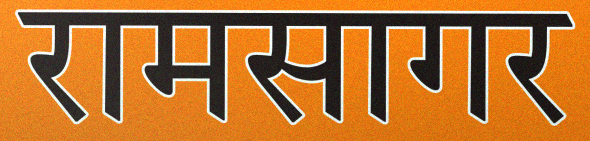
रामसागर